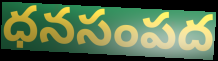
ధనసంపద